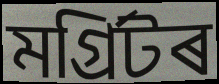
মৰ্গ্ৰিটৰ